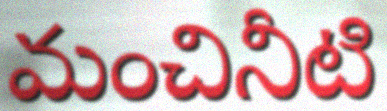
మంచినీటి